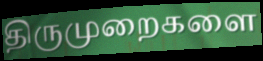
திருமுறைகளை